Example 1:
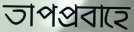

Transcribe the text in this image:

তাপপ্রবাহে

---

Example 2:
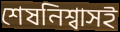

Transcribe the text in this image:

শেষনিশ্বাসই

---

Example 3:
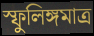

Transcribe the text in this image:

স্ফুলিঙ্গমাত্র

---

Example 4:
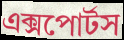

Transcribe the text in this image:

এক্সপোর্টস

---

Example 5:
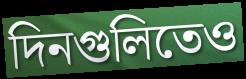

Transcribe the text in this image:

দিনগুলিতেও